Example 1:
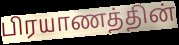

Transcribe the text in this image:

பிரயாணத்தின்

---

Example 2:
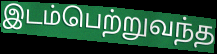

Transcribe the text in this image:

இடம்பெற்றுவந்த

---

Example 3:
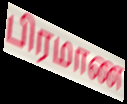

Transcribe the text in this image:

பிரமாண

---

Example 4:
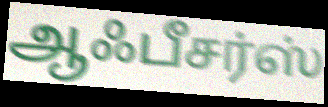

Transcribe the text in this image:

ஆஃபீசர்ஸ்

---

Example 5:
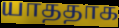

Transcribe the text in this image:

யாததாக